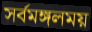
সর্বমঙ্গলময়